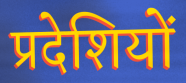
प्रदेशियों